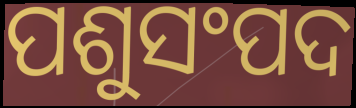
ପଶୁସଂପଦ